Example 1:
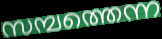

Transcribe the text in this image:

സമ്പത്തെന്ന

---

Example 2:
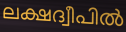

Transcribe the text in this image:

ലക്ഷദ്വീപിൽ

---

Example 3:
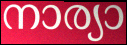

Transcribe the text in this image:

നാര്യാ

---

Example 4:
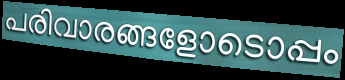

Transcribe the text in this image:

പരിവാരങ്ങളോടൊപ്പം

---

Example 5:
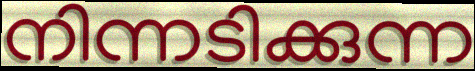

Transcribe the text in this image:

നിന്നടിക്കുന്ന